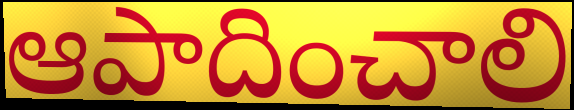
ఆపాదించాలి